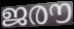
ജരൗ